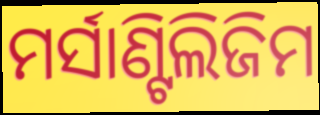
ମର୍ସାଣ୍ଟିଲିଜିମ